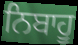
ਨਿਬਾਹੂ